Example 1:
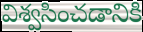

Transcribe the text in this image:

విశ్వసించడానికి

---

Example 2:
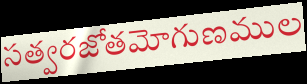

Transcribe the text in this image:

సత్వరజోతమోగుణముల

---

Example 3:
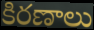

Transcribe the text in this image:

కిరణాలు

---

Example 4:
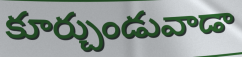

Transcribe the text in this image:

కూర్చుండువాడా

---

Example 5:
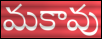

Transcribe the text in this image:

మకావు